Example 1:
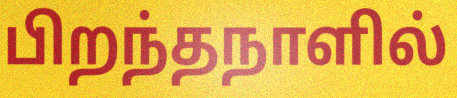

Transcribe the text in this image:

பிறந்தநாளில்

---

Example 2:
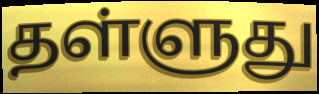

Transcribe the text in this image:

தள்ளுது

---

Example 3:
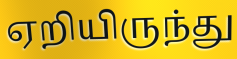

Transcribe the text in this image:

ஏறியிருந்து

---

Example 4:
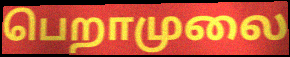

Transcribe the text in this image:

பெறாமுலை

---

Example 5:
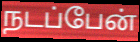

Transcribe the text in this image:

நடப்பேன்